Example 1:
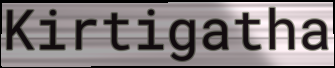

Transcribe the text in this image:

Kirtigatha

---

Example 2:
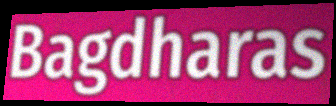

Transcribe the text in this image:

Bagdharas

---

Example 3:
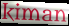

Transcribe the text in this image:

kiman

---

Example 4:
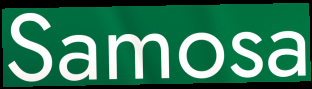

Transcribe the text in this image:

Samosa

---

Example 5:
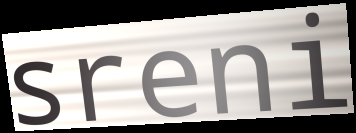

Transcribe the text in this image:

sreni